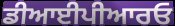
ਡੀਆਈਪੀਆਰਓ